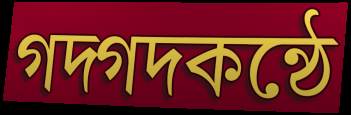
গদ্গদকন্ঠে